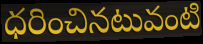
ధరించినటువంటి